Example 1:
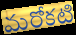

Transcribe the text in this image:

మరోకటి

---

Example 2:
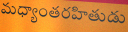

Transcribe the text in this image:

మధ్యాంతరహితుడు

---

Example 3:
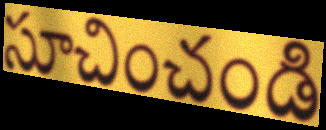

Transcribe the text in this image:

సూచించండి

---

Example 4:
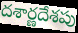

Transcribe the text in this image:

దశార్ణదేశపు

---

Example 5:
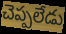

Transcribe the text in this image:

చెప్పలేడు